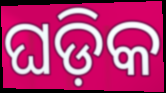
ଘଡ଼ିକ